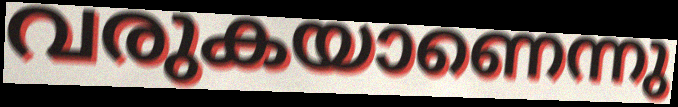
വരുകയാണെന്നു